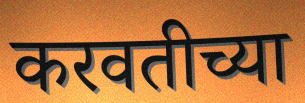
करवतीच्या